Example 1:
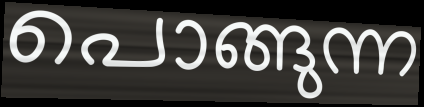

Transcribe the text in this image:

പൊങ്ങുന്ന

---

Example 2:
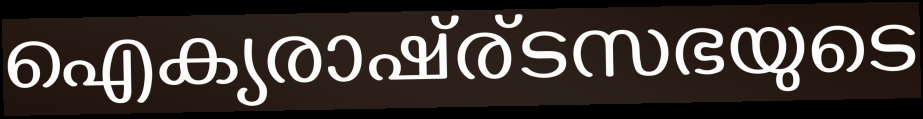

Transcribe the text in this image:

ഐക്യരാഷ്ര്ടസഭയുടെ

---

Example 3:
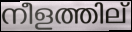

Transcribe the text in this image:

നീളത്തില്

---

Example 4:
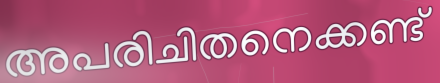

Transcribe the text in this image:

അപരിചിതനെക്കണ്ട്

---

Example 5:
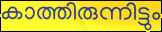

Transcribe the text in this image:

കാത്തിരുന്നിട്ടും